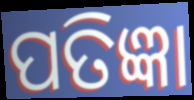
ପତିଜ୍ଞା